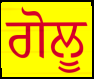
ਗੋਲੂ